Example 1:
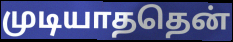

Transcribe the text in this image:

முடியாததென்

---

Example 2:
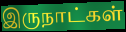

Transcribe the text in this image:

இருநாட்கள்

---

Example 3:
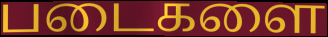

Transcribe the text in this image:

படைகளை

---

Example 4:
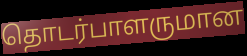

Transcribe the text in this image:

தொடர்பாளருமான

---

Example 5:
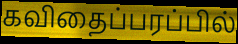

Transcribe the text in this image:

கவிதைப்பரப்பில்